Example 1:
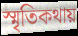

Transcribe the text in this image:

স্মৃতিকথায়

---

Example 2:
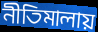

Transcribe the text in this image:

নীতিমালায়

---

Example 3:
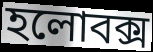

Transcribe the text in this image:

হলোবক্স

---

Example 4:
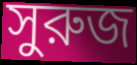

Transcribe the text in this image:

সুরুজ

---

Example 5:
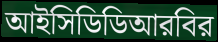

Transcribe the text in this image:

আইসিডিডিআরবির